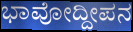
ಭಾವೋದ್ದೀಪನ